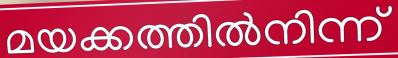
മയക്കത്തിൽനിന്ന്